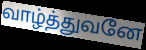
வாழ்த்துவனே